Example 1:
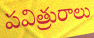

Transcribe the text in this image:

పవిత్రురాలు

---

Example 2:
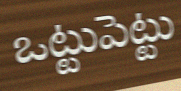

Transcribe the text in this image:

ఒట్టుపెట్టు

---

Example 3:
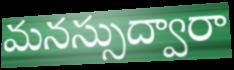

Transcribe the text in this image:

మనస్సుద్వారా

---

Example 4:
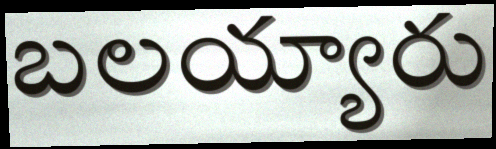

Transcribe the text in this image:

బలయ్యారు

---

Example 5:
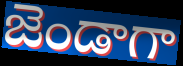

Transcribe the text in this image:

జెండాగా